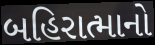
બહિરાત્માનો